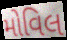
મોવિલ